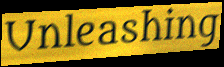
Unleashing